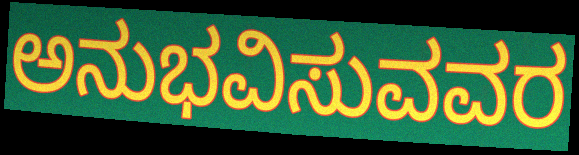
ಅನುಭವಿಸುವವರ